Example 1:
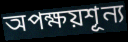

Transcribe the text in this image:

অপক্ষয়শূন্য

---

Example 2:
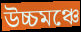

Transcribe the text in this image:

উচ্চমঞ্চে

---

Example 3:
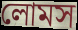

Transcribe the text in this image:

লোমস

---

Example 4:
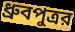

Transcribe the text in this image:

ধ্রুবপুত্রর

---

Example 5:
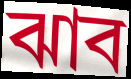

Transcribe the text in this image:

ঝাব